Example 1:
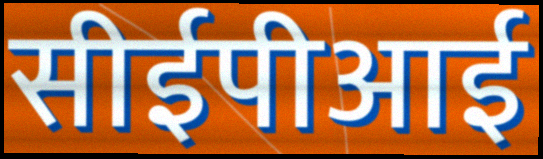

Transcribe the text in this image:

सीईपीआई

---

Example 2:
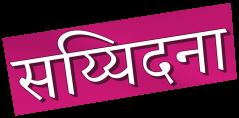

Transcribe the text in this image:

सय्यिदना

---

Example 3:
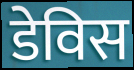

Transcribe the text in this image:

डेविस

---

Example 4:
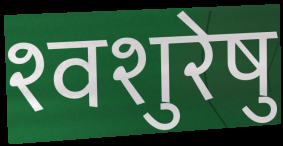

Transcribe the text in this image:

श्वशुरेषु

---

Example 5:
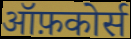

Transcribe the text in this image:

ऑफ़कोर्स